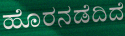
ಹೊರನಡೆದಿದೆ